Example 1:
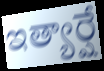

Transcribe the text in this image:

ఇత్యార్షే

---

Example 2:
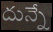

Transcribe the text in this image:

దున్నే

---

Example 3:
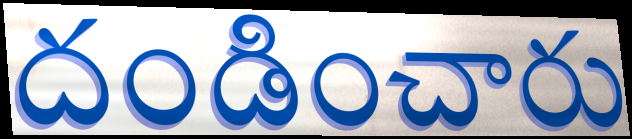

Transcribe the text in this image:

దండించారు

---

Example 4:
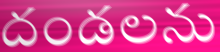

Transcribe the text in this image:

దండలను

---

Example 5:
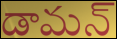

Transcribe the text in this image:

డామన్